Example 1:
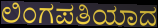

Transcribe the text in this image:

ಲಿಂಗಪತಿಯಾದ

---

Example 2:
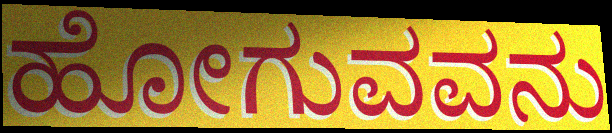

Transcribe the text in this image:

ಹೋಗುವವನು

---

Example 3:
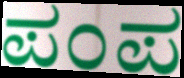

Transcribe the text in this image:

ಪಂಪ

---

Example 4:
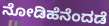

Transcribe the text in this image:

ನೋಡಿಹೆನೆಂದಡೆ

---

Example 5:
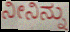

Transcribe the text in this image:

ನೀನಿನ್ನು